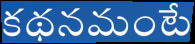
కథనమంటే